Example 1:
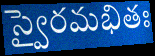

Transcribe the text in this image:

స్వైరమభితః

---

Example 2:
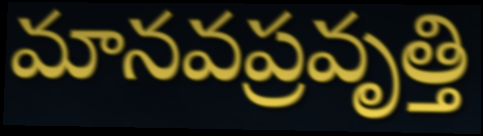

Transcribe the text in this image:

మానవప్రవృత్తి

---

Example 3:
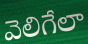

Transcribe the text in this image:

వెలిగేలా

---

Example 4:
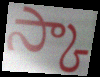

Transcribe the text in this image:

స్కా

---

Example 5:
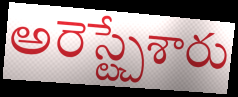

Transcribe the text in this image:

అరెస్ట్చేశారు